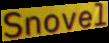
Snovel